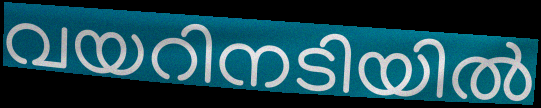
വയറിനടിയിൽ